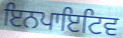
ਇਨਪਾਇਟਿਵ